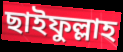
ছাইফুল্লাহ